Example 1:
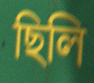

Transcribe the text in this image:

ছিলি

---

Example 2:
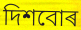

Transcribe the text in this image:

দিশবোৰ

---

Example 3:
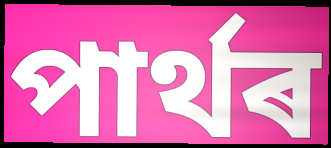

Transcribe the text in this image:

পাৰ্থৰ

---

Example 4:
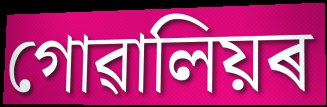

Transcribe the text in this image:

গোৱালিয়ৰ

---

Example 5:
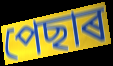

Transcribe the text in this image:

পেছাৰ